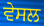
ਵੇਸਲ